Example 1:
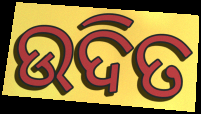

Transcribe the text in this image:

ଉଦିତ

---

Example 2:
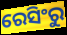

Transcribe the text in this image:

ରେସିଂରୁ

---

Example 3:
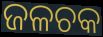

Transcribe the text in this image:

ଜଳଚକ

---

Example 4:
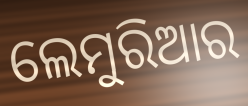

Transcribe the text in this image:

ଲେମୁରିଆର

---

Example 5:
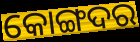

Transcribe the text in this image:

କୋଙ୍ଗଦର